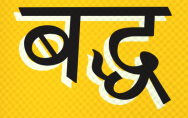
बद्ध